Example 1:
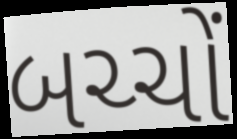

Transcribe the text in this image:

બચ્ચોં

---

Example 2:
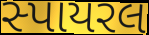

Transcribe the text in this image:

સ્પાયરલ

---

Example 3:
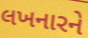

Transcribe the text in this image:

લખનારને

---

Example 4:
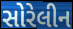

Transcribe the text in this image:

સોરેલીન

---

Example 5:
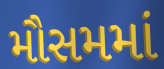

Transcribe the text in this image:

મૌસમમાં